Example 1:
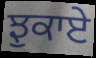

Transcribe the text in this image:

ਝੁਕਾਏ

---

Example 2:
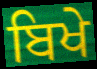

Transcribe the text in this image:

ਬਿਖੇ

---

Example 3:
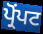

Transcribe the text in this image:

ਪ੍ਰੋਂਪਟ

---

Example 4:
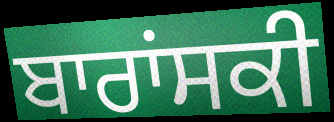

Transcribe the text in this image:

ਬਾਰਾਂਸਕੀ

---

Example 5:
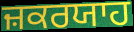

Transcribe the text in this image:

ਜ਼ਕਰਯਾਹ